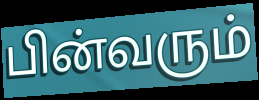
பின்வரும்